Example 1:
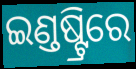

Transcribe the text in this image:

ଇଣ୍ଡଷ୍ଟ୍ରିରେ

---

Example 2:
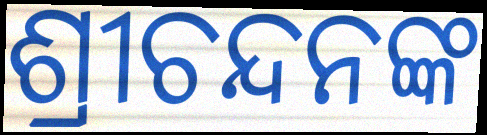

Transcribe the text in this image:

ଶ୍ରୀଚନ୍ଦନଙ୍କ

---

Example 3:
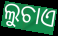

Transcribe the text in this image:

ଲୁଚାଏ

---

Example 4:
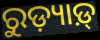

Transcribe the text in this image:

ରୁଡ଼୍ୟାଡ଼୍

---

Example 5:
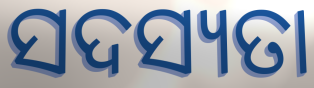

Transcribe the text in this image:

ସଦସ୍ଯତା